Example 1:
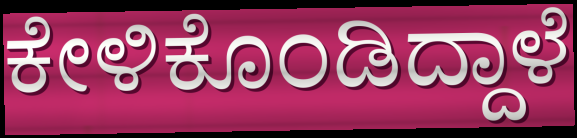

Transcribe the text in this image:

ಕೇಳಿಕೊಂಡಿದ್ದಾಳೆ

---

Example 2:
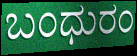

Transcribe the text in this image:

ಬಂಧುರಂ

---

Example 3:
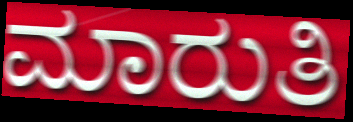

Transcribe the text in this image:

ಮಾರುತಿ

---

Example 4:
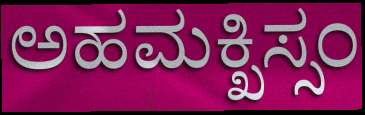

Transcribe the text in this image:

ಅಹಮಕ್ಖಿಸ್ಸಂ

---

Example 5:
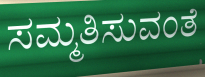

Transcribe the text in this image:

ಸಮ್ಮತಿಸುವಂತೆ